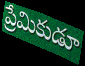
ప్రేమికుడూ